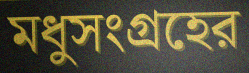
মধুসংগ্রহের